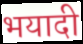
भयादी